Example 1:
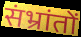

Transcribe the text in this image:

संभ्रांतों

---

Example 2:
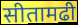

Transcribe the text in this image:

सीतामढी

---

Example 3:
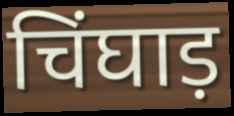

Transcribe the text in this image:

चिंघाड़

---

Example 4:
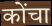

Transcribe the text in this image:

कोंचा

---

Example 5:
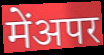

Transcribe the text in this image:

मेंअपर